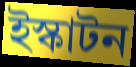
ইস্কাটন